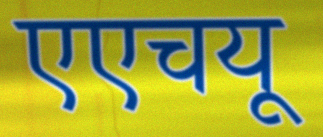
एएचयू